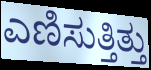
ಎಣಿಸುತ್ತಿತ್ತು